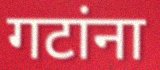
गटांना